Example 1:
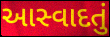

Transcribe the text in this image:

આસ્વાદતું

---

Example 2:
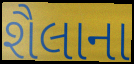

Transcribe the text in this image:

શૈલાના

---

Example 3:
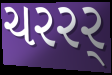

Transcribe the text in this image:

ચરરર્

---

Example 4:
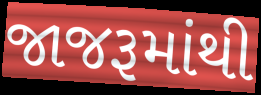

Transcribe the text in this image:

જાજરૂમાંથી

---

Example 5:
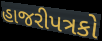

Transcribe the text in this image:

હાજરીપત્રકો